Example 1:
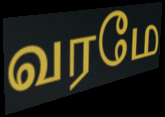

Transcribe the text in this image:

வரமே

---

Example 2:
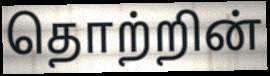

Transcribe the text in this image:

தொற்றின்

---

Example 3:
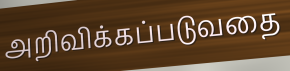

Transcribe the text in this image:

அறிவிக்கப்படுவதை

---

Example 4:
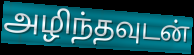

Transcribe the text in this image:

அழிந்தவுடன்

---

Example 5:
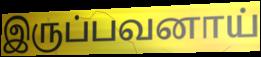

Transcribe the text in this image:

இருப்பவனாய்